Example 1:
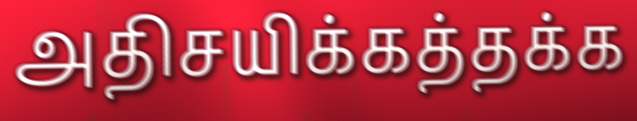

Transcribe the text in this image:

அதிசயிக்கத்தக்க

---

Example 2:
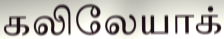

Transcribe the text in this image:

கலிலேயாக்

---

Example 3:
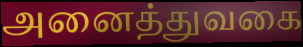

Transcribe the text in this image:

அனைத்துவகை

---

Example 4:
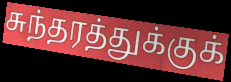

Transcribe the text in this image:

சுந்தரத்துக்குக்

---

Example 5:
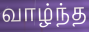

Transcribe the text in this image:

வாழ்ந்த